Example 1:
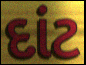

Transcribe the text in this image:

દાંટ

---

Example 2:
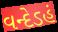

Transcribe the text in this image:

વન્દેઽહં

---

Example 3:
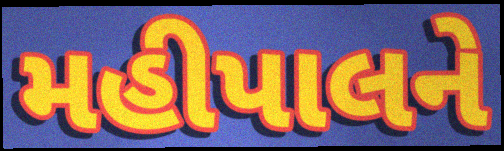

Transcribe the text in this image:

મહીપાલને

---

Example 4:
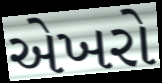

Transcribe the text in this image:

એખરો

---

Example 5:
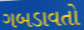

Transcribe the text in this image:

ગબડાવતો